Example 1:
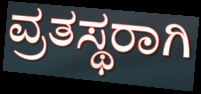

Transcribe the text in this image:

ವ್ರತಸ್ಥರಾಗಿ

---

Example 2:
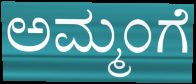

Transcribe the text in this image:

ಅಮ್ಮಂಗೆ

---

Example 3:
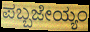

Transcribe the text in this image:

ಪಬ್ಬಜೇಯ್ಯಂ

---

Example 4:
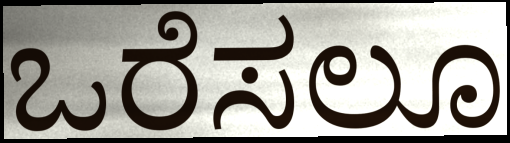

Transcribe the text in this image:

ಒರೆಸಲೂ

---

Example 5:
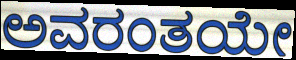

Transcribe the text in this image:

ಅವರಂತಯೇ